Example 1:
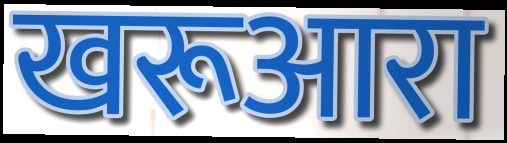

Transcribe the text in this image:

खरूआरा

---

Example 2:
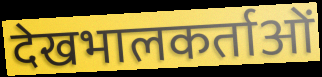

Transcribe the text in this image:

देखभालकर्ताओं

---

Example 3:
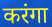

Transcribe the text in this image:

करंगा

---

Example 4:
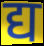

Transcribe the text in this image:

द्य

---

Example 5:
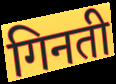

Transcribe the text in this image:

गिनती